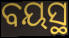
ବୟସ୍ଥ